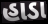
હાડા